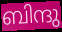
ബിന്ദു